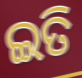
ଇତି